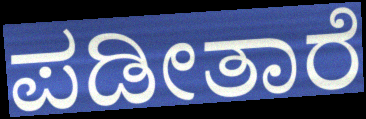
ಪಡೀತಾರೆ